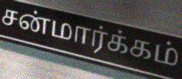
சன்மார்க்கம்